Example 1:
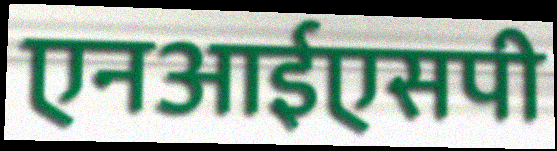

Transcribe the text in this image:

एनआईएसपी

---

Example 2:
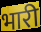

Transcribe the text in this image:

भारी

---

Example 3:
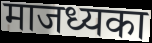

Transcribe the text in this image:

माजध्यका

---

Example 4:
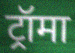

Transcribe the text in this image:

ट्रॉमा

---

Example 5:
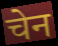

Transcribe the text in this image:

चेन